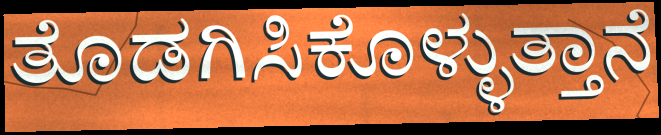
ತೊಡಗಿಸಿಕೊಳ್ಳುತ್ತಾನೆ